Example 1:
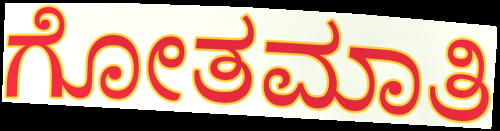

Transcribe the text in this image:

ಗೋತಮಾತಿ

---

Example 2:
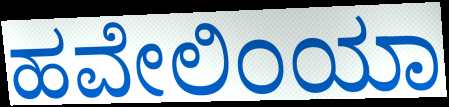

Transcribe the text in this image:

ಹವೇಲಿಂಯಾ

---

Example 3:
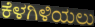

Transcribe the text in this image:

ಕೆಳಗಿಳಿಯಲು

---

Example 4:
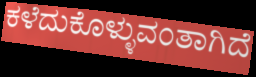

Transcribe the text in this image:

ಕಳೆದುಕೊಳ್ಳುವಂತಾಗಿದೆ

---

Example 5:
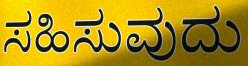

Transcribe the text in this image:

ಸಹಿಸುವುದು